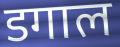
डगाल